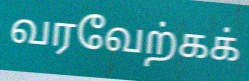
வரவேற்கக்